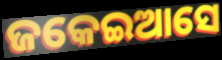
ଜକେଇଆସେ